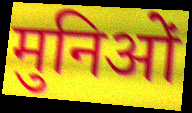
मुनिओं